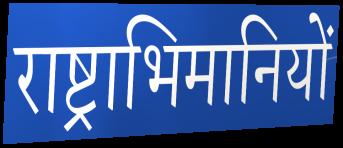
राष्ट्राभिमानियों